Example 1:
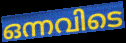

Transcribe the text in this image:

ഒന്നവിടെ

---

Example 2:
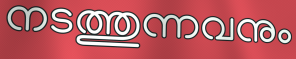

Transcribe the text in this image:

നടത്തുന്നവനും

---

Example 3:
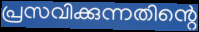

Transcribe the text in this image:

പ്രസവിക്കുന്നതിന്റെ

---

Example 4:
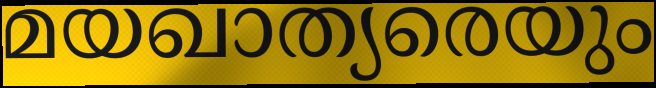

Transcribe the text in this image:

മയഖാത്യരെയും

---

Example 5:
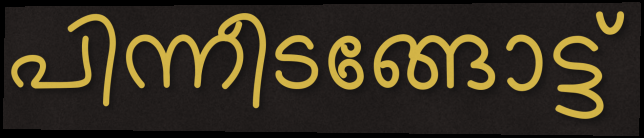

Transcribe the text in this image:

പിന്നീടങ്ങോട്ട്